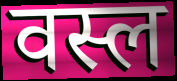
वस्ल